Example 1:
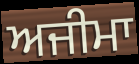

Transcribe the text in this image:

ਅਜੀਮਾ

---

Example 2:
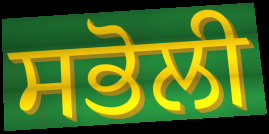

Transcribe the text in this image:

ਸਭੋਲੀ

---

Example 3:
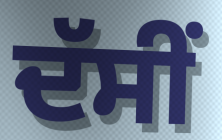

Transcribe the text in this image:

ਦੱਸੀਂ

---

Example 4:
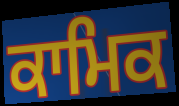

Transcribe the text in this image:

ਕਾਮਿਕ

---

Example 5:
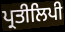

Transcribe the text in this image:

ਪ੍ਰਤੀਲਿਪੀ